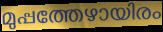
മുപ്പത്തേഴായിരം